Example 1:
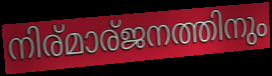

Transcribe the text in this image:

നിര്മാര്ജനത്തിനും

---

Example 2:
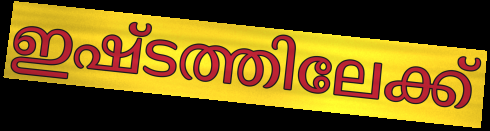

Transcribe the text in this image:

ഇഷ്ടത്തിലേക്ക്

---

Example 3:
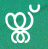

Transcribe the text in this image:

യ്ത്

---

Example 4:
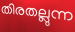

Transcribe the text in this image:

തിരതല്ലുന്ന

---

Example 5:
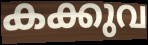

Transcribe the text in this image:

കക്കുവ